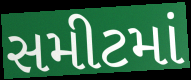
સમીટમાં